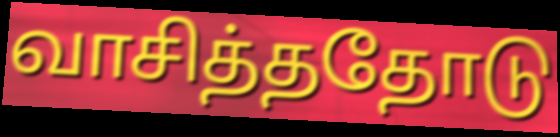
வாசித்ததோடு